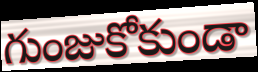
గుంజుకోకుండా